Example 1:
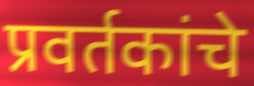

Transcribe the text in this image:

प्रवर्तकांचे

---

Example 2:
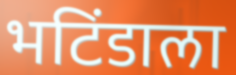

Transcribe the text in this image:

भटिंडाला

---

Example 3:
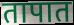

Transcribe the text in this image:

तापात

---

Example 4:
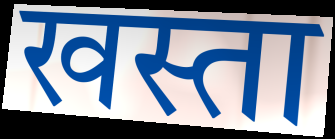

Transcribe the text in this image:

खस्ता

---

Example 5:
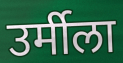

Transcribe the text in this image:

उर्मीला